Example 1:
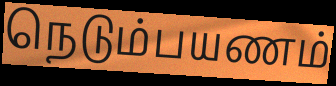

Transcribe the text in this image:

நெடும்பயணம்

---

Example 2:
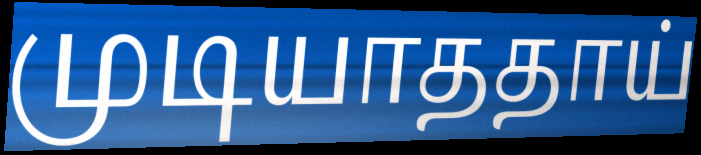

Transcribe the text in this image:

முடியாததாய்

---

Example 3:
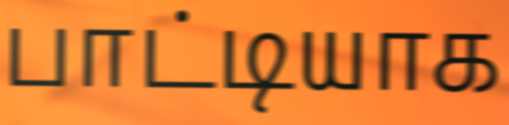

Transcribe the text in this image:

பாட்டியாக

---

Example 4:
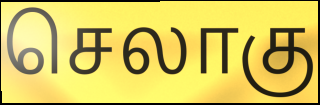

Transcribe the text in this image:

செலாகு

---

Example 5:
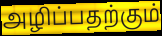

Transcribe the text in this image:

அழிப்பதற்கும்